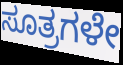
ಸೂತ್ರಗಳೇ